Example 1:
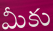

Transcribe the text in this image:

మీకు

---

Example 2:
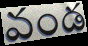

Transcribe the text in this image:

వండ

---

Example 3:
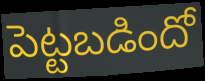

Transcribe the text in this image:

పెట్టబడిందో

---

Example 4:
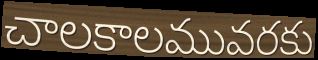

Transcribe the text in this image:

చాలకాలమువరకు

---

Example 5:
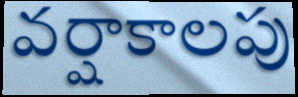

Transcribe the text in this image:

వర్షాకాలపు